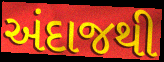
અંદાજથી